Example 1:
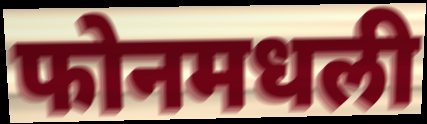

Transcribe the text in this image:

फोनमधली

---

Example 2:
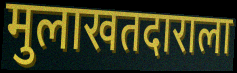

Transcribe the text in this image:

मुलाखतदाराला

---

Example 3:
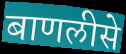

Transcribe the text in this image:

बाणलीसे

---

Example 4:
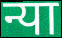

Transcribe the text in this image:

न्या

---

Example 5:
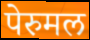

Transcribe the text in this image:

पेरुमल